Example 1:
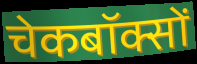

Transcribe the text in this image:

चेकबॉक्सों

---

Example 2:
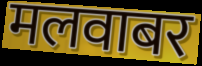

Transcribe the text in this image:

मलवाबर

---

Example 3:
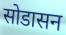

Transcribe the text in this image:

सोडासन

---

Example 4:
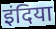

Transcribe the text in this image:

इंदिया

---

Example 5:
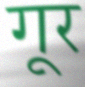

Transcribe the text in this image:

गूर